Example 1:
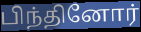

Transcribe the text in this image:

பிந்தினோர்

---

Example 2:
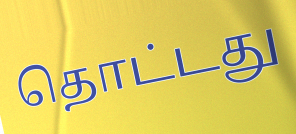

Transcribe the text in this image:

தொட்டது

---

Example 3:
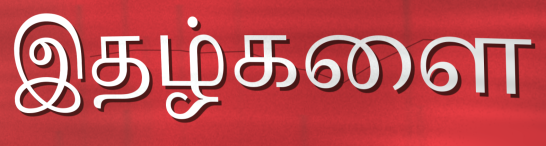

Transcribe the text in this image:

இதழ்களை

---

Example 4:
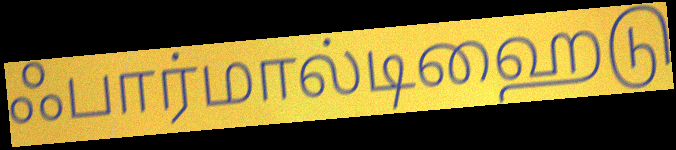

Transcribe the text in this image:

ஃபார்மால்டிஹைடு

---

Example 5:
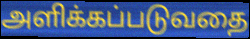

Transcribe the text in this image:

அளிக்கப்படுவதை